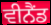
ਵੀਨੈਂਡ